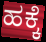
ಹಕ್ಕೆ